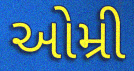
ઓમ્રી